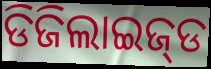
ଡିଜିଲାଇଜ୍‌ଡ